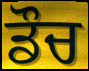
ਡੌਚ